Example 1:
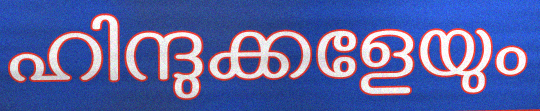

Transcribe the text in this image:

ഹിന്ദുക്കളേയും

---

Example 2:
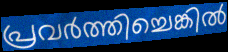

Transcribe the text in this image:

പ്രവർത്തിച്ചെങ്കിൽ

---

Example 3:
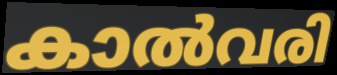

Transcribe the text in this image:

കാൽവരി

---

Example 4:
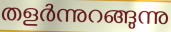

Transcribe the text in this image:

തളർന്നുറങ്ങുന്നു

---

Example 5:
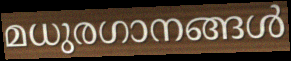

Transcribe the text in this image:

മധുരഗാനങ്ങൾ